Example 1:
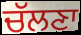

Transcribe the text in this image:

ਚੱਲਣਾ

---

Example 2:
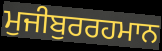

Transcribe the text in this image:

ਮੁਜੀਬੁਰਰਹਮਾਨ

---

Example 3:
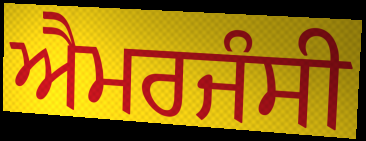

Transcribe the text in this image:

ਐਮਰਜੰਸੀ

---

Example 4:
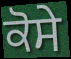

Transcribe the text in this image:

ਕੋਸੇ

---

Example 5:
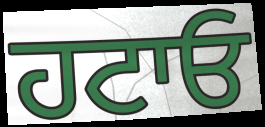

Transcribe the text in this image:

ਹਟਾਓ